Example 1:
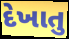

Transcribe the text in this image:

દેખાતુ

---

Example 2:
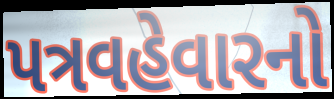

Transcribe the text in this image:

પત્રવહેવારનો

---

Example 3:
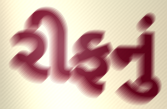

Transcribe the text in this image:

રીફનું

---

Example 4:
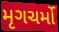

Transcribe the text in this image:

મૃગચર્મો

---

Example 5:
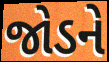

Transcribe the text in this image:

જોડને